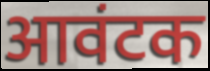
आवंटक